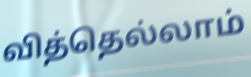
வித்தெல்லாம்